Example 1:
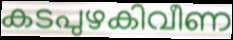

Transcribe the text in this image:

കടപുഴകിവീണ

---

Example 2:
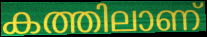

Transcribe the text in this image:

കത്തിലാണ്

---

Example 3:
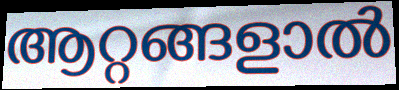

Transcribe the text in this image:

ആറ്റങ്ങളാൽ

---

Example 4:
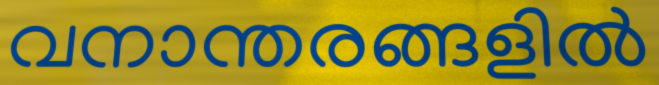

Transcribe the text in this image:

വനാന്തരങ്ങളിൽ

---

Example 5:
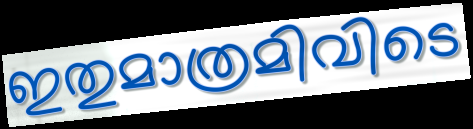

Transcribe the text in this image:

ഇതുമാത്രമിവിടെ